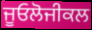
ਜੂਓਲੋਜੀਕਲ